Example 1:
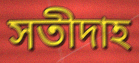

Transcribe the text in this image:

সতীদাহ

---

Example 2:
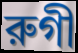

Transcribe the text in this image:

রুগী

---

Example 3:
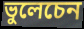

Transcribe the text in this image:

ভুলেচেন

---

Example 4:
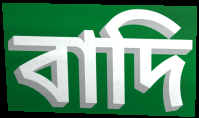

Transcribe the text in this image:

বাদি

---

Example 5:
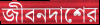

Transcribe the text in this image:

জীবনদাশের